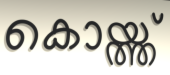
കൊയ്ത്ത്